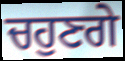
ਚਹੁਣਗੇ